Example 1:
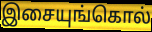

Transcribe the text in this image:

இசையுங்கொல்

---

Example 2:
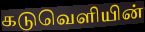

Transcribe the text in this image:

கடுவெளியின்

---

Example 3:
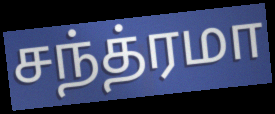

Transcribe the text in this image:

சந்த்ரமா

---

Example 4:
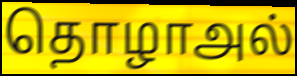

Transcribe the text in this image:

தொழாஅல்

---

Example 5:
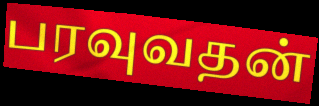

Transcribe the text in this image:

பரவுவதன்